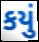
કયું